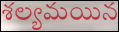
శల్యమయిన